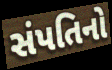
સંપતિનો